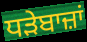
ਧੜੇਬਾਜ਼ਾਂ